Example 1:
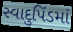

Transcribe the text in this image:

સ્વાદુપિંડમાં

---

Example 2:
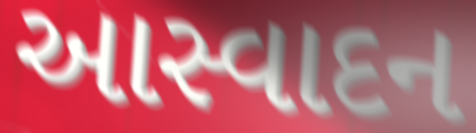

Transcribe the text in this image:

આસ્વાદન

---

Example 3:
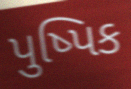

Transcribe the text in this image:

પુષ્પિક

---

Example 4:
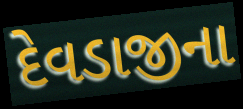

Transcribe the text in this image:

દેવડાજીના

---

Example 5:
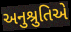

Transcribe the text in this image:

અનુશ્રુતિએ